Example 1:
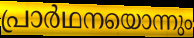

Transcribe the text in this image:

പ്രാർഥനയൊന്നും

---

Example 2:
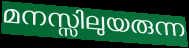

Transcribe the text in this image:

മനസ്സിലുയരുന്ന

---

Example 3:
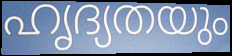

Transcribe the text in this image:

ഹൃദ്യതയും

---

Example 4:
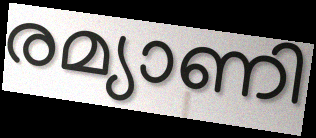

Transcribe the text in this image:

രമ്യാണി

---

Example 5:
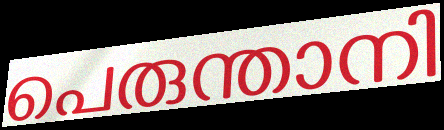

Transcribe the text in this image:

പെരുന്താനി